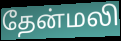
தேன்மலி